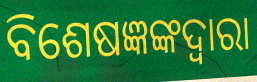
ବିଶେଷଜ୍ଞଙ୍କଦ୍ୱାରା